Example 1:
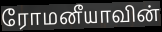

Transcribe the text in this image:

ரோமனீயாவின்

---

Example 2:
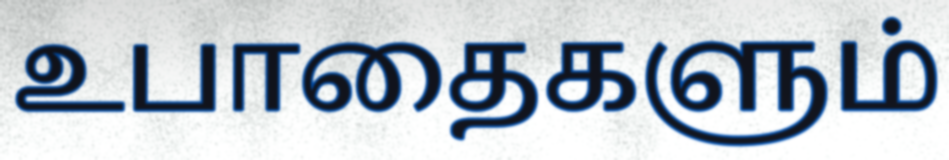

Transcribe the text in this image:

உபாதைகளும்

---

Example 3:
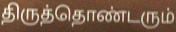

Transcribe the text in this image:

திருத்தொண்டரும்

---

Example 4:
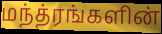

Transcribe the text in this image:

மந்த்ரங்களின்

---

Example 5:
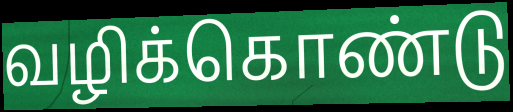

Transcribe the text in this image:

வழிக்கொண்டு